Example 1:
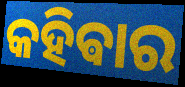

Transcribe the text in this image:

କହିଵାର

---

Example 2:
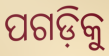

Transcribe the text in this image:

ପଗଡ଼ିକୁ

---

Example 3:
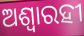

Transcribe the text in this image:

ଅଶ୍ୱାରହୀ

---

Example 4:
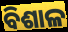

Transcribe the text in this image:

ବିଶାଳ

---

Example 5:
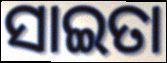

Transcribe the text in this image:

ସାଇତା